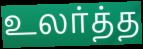
உலர்த்த